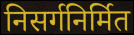
निसर्गनिर्मित